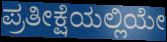
ಪ್ರತೀಕ್ಷೆಯಲ್ಲಿಯೇ